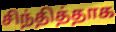
சிந்தித்தாக